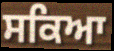
ਸਕਿਆ